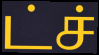
ட்ச்